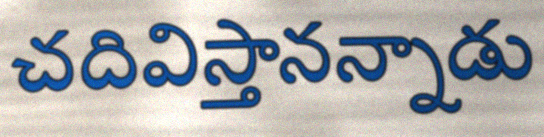
చదివిస్తానన్నాడు